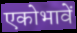
एकोभावें